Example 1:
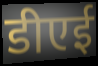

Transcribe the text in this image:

डीएई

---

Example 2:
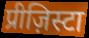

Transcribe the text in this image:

प्रीज़िस्टा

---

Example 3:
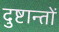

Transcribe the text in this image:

दुष्टान्तों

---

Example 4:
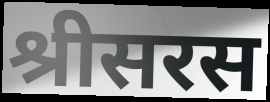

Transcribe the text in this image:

श्रीसरस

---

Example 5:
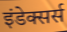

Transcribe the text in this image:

इंडेक्सर्स